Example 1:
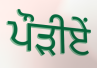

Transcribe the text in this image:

ਪੌੜੀਏਂ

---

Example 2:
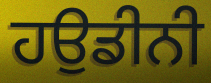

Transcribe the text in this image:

ਹਉਡੀਨੀ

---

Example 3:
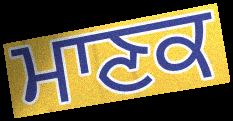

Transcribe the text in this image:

ਮਾਣਕ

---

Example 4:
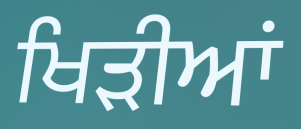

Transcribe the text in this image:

ਖਿੜੀਆਂ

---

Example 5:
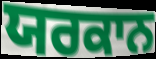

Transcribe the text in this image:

ਯਰਕਾਨ